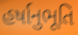
હર્ષાનુભૂતિ